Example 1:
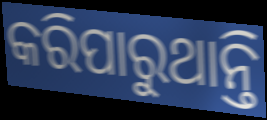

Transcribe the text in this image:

କରିପାରୁଥାନ୍ତି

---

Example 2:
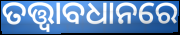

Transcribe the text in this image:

ତତ୍ତ୍ୱାବଧାନରେ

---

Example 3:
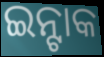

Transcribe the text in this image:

ଇନ୍ଟାକ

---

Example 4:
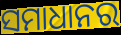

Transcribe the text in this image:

ସମାଧାନର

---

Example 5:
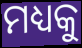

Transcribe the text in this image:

ମଧ୍ୟକୁ